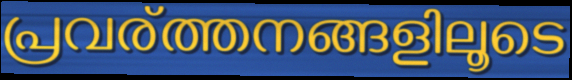
പ്രവര്ത്തനങ്ങളിലൂടെ